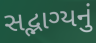
સદ્ભાગ્યનું